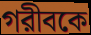
গরীবকে